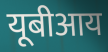
यूबीआय